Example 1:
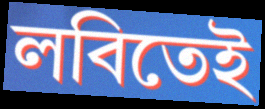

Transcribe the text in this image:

লবিতেই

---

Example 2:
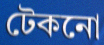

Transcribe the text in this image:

টেকনো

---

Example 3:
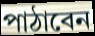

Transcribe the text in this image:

পাঠাবেন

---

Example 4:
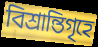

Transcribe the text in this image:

বিশ্রান্তিগৃহে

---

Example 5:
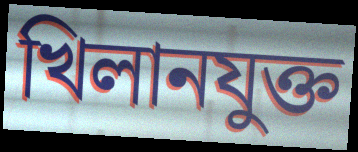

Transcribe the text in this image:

খিলানযুক্ত